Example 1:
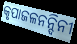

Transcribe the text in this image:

କୃପାଜଳନନ୍ଦିନୀ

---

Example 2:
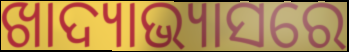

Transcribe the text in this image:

ଖାଦ୍ୟାଭ୍ୟାସରେ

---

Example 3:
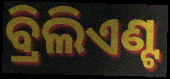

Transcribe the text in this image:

ବ୍ରିଲିଏଣ୍ଟ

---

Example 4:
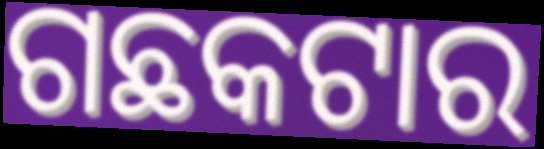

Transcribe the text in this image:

ଗଛକଟାର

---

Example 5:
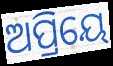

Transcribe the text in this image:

ଅପ୍ରିୟେ